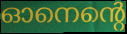
ഓനെന്റെ